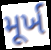
મૂર્ખ